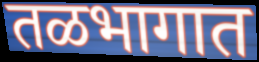
तळभागात